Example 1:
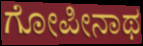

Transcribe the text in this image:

ಗೋಪೀನಾಥ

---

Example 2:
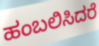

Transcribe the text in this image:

ಹಂಬಲಿಸಿದರೆ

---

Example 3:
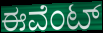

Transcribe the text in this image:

ಈವೆಂಟ್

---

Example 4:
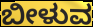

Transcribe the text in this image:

ಬೀಳುವ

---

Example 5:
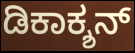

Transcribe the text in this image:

ಡಿಕಾಕ್ಶನ್